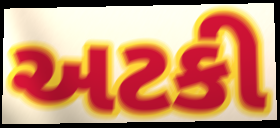
અટકી